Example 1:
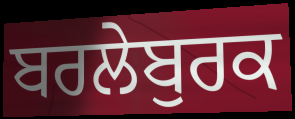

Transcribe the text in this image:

ਬਰਲੇਬੁਰਕ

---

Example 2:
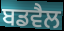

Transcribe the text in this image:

ਬਡਵੈਲ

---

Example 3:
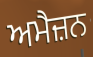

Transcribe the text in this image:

ਅਮੈਜ਼ਨ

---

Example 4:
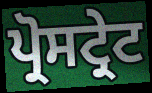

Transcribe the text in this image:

ਪ੍ਰੋਸਟ੍ਰੇਟ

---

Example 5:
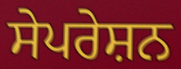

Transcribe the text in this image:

ਸੇਪਰੇਸ਼ਨ